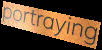
portraying